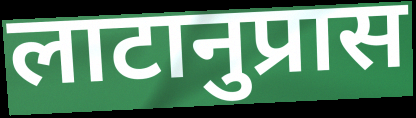
लाटानुप्रास